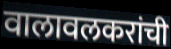
वालावलकरांची